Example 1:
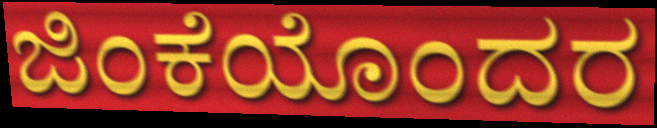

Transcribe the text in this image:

ಜಿಂಕೆಯೊಂದರ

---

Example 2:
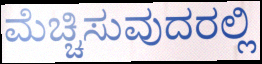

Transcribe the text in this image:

ಮೆಚ್ಚಿಸುವುದರಲ್ಲಿ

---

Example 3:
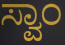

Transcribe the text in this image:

ಸ್ವಾಂ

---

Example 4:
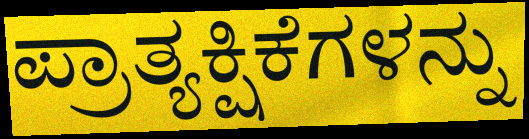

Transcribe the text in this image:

ಪ್ರಾತ್ಯಕ್ಷಿಕೆಗಳನ್ನು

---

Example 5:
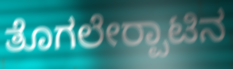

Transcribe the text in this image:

ತೊಗಲೇರ‍್ಪಾಟಿನ